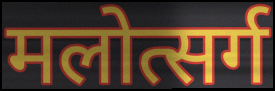
मलोत्सर्ग